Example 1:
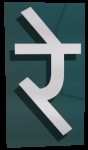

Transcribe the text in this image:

रे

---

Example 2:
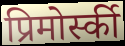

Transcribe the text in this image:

प्रिमोर्स्की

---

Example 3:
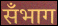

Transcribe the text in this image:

सँभाग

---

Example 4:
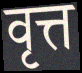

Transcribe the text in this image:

वृत्त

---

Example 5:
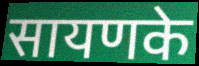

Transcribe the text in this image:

सायणके